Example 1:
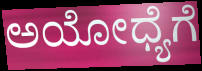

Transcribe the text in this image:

ಅಯೋಧ್ಯೆಗೆ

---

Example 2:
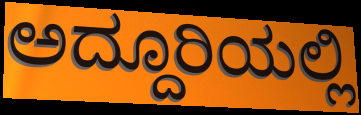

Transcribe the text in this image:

ಅದ್ದೂರಿಯಲ್ಲಿ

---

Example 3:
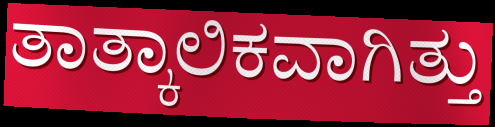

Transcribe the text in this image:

ತಾತ್ಕಾಲಿಕವಾಗಿತ್ತು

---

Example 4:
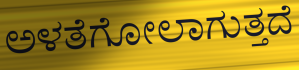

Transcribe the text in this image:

ಅಳತೆಗೋಲಾಗುತ್ತದೆ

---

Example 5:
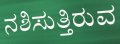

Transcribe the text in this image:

ನಶಿಸುತ್ತಿರುವ